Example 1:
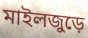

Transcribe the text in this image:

মাইলজুড়ে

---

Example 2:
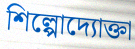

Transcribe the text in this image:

শিল্পোদ্যোক্তা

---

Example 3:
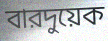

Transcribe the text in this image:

বারদুয়েক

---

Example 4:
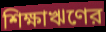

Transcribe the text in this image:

শিক্ষাঋণের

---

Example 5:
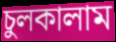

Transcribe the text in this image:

চুলকালাম